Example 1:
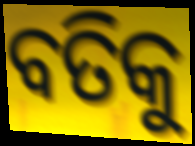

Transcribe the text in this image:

ବତିକୁ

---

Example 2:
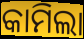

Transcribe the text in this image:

କାମିଲା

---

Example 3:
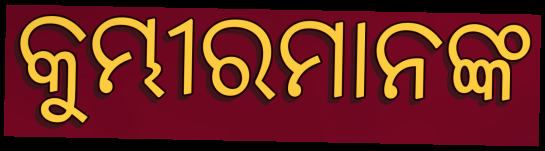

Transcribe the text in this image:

କୁମ୍ଭୀରମାନଙ୍କ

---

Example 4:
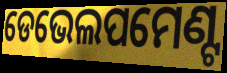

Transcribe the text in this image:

ଡେଭେଲପମେଣ୍ଟ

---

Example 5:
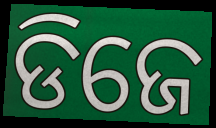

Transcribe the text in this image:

ଡିଜେ